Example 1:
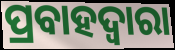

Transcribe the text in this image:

ପ୍ରବାହଦ୍ୱାରା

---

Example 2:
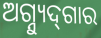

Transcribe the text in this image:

ଅଗ୍ନ୍ୟୁଦ୍‌ଗାର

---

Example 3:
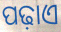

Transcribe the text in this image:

ପଢ଼ାଏ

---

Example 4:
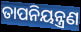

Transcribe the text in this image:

ତାପନିୟନ୍ତ୍ରଣ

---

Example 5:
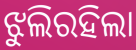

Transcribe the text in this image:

ଝୁଲିରହିଲା